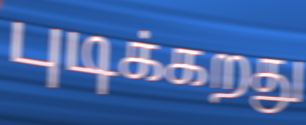
புடிக்கறது